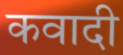
कवादी